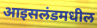
आइसलंडमधील